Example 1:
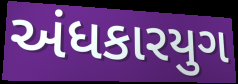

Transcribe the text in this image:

અંધકારયુગ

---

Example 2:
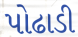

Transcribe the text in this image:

પોઢાડી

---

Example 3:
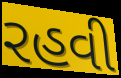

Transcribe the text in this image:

રહવી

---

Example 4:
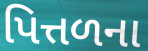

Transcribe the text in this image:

પિત્તળના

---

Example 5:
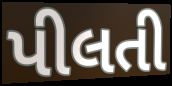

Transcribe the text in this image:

પીલતી